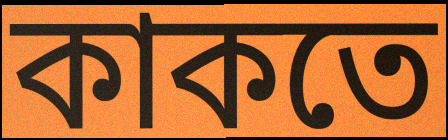
কাকতে